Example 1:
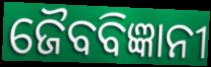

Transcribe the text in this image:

ଜୈବବିଜ୍ଞାନୀ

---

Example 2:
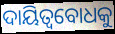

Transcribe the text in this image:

ଦାୟିତ୍ୱବୋଧକୁ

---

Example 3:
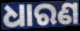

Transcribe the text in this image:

ଧାରଣ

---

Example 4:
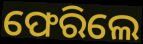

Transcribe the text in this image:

ଫେରିଲେ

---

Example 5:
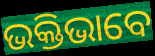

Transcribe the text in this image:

ଭକ୍ତିଭାବେ